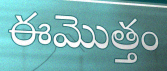
ఈమొత్తం